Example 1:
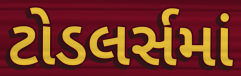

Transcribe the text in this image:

ટોડલર્સમાં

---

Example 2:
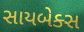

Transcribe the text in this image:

સાયબેક્સ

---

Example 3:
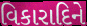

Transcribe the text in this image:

વિકારાદિને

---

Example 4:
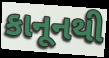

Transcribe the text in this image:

કાનૂનથી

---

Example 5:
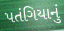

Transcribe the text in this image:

પતંગિયાનું